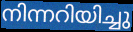
നിന്നറിയിച്ചു